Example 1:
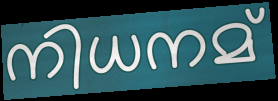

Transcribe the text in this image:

നിധനമ്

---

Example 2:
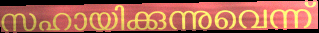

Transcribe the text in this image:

സഹായിക്കുന്നുവെന്ന്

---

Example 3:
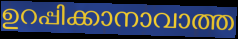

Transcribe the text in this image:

ഉറപ്പിക്കാനാവാത്ത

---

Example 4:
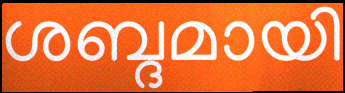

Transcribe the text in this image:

ശബ്ദമായി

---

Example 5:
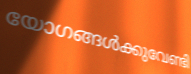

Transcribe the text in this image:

യോഗങ്ങൾക്കുവേണ്ടി